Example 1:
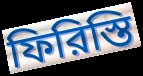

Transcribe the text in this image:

ফিরিস্তি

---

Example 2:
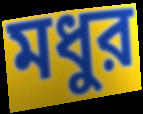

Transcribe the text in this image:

মধুর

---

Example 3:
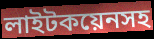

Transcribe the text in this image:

লাইটকয়েনসহ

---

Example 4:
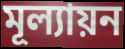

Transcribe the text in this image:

মূল্যায়ন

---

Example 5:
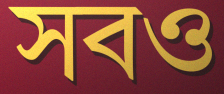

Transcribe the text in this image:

সবও